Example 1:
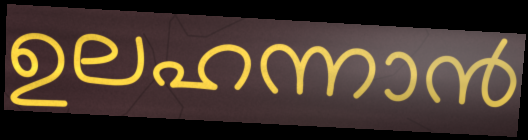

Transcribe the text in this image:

ഉലഹന്നാൻ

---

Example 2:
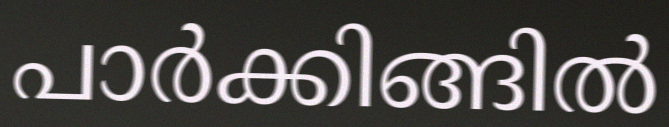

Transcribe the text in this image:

പാർക്കിങ്ങിൽ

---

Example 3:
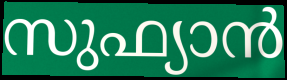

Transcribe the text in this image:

സുഫ്യാൻ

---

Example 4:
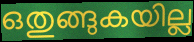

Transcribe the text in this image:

ഒതുങ്ങുകയില്ല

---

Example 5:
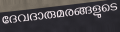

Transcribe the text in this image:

ദേവദാരുമരങ്ങളുടെ